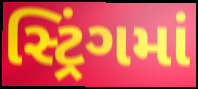
સ્ટ્રિંગમાં